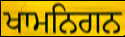
ਖਾਮਨਿਗਨ